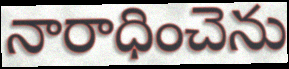
నారాధించెను